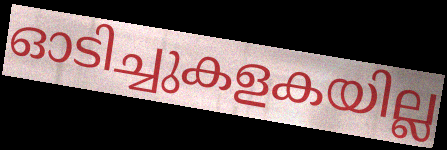
ഓടിച്ചുകളകയില്ല